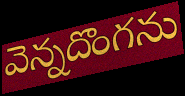
వెన్నదొంగను